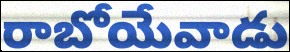
రాబోయేవాడు